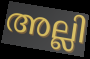
അല്ലി